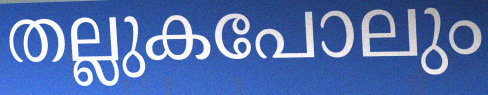
തല്ലുകപോലും